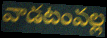
వాడటంవల్ల